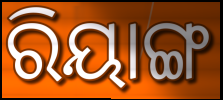
ରିୟାଙ୍ଗ